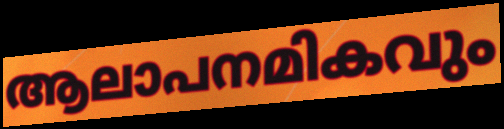
ആലാപനമികവും